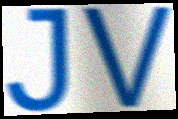
JV